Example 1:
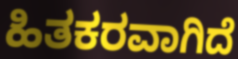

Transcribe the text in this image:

ಹಿತಕರವಾಗಿದೆ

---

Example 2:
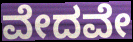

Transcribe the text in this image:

ವೇದವೇ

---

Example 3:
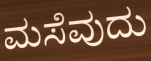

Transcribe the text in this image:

ಮಸೆವುದು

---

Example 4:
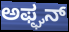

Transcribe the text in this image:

ಅಫ್ಘನ್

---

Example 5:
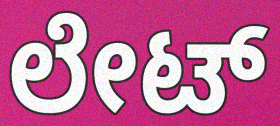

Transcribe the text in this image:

ಲೇಟ್